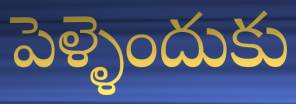
పెళ్ళెందుకు